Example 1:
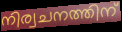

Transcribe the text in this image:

നിര്വചനത്തിന്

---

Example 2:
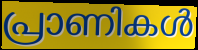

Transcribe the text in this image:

പ്രാണികൾ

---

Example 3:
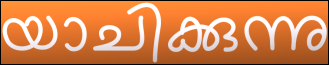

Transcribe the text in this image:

യാചിക്കുന്നു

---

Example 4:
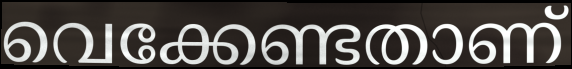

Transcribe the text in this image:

വെക്കേണ്ടതാണ്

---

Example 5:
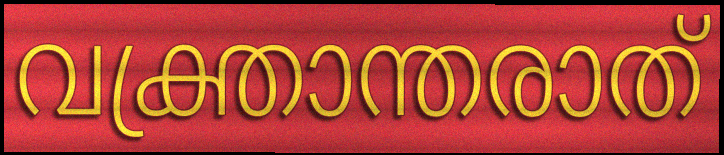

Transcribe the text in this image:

വക്ത്രാന്തരാത്